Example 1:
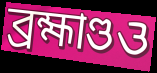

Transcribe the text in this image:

ব্রহ্মাণ্ডও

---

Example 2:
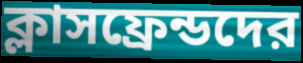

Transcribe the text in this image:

ক্লাসফ্রেন্ডদের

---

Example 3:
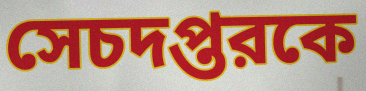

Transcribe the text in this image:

সেচদপ্তরকে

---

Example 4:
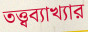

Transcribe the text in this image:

তত্ত্বব্যাখ্যার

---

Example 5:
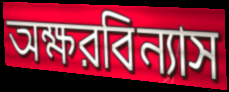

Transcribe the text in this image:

অক্ষরবিন্যাস